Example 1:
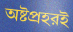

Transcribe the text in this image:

অষ্টপ্রহরই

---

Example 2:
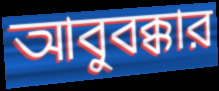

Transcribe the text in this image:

আবুবক্কার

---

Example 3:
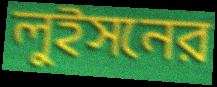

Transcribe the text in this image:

লুইসনের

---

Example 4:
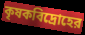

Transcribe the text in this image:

কৃষকবিদ্রোহের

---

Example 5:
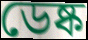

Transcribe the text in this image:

ডেষ্ক